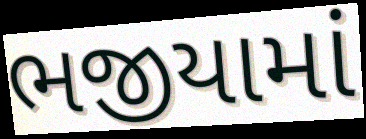
ભજીયામાં